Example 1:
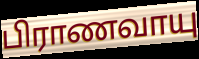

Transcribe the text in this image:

பிராணவாயு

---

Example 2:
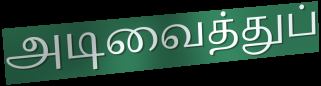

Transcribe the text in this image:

அடிவைத்துப்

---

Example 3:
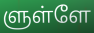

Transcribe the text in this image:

ளுள்ளே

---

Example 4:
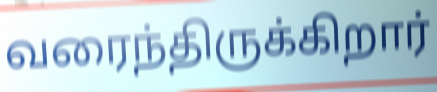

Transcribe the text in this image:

வரைந்திருக்கிறார்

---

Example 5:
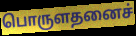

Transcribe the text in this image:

பொருளதனைச்